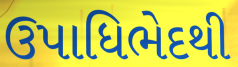
ઉપાધિભેદથી